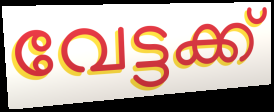
വേട്ടക്ക്